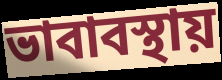
ভাবাবস্থায়